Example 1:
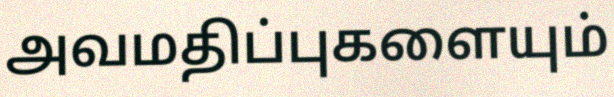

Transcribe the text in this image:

அவமதிப்புகளையும்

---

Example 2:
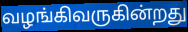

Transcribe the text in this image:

வழங்கிவருகின்றது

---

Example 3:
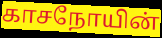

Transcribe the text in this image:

காசநோயின்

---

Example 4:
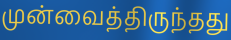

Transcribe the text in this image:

முன்வைத்திருந்தது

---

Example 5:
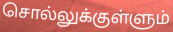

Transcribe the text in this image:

சொல்லுக்குள்ளும்